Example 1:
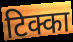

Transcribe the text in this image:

टिक्का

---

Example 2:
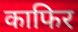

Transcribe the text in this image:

काफिर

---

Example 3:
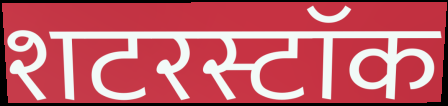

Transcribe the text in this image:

शटरस्टॉक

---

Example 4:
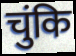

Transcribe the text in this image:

चुंकि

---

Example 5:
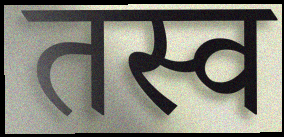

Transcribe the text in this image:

तस्व